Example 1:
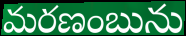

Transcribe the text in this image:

మరణంబును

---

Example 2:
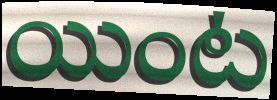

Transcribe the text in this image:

యింట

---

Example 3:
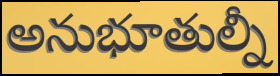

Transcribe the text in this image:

అనుభూతుల్నీ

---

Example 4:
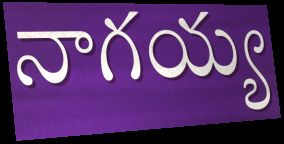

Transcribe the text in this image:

నాగయ్య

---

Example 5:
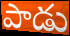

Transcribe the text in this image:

పాడు